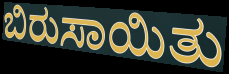
ಬಿರುಸಾಯಿತು